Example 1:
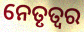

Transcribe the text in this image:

ନେତୃତ୍ବର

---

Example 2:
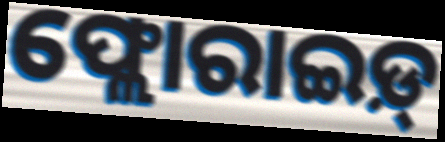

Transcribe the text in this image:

ଫ୍ଲୋରାଇଡ଼୍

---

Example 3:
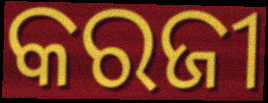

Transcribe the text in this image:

କରଜୀ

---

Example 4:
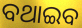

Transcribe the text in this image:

ବଥାଇବ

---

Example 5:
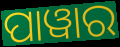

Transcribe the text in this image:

ପାୱାର